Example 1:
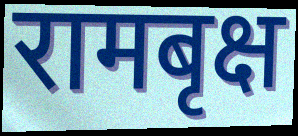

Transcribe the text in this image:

रामबृक्ष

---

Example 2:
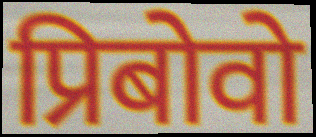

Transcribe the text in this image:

प्रिबोवो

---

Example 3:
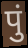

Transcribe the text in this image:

पुं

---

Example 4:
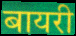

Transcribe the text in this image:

बायरी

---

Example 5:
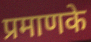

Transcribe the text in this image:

प्रमाणके